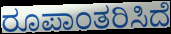
ರೂಪಾಂತರಿಸಿದೆ